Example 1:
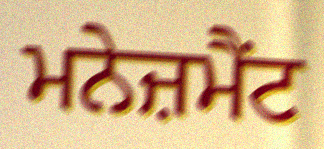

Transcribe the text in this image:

ਮਨੇਜ਼ਮੈਂਟ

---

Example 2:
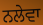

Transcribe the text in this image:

ਨਲੇਵਾ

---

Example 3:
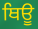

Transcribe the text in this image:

ਥਿਊ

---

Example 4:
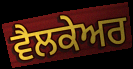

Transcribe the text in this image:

ਵੈਲਕੇਅਰ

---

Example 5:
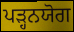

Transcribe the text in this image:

ਪੜ੍ਹਨਯੋਗ